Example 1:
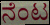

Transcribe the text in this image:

ನೆಂಟ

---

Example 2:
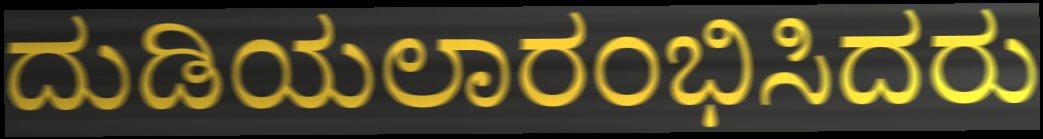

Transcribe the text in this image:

ದುಡಿಯಲಾರಂಭಿಸಿದರು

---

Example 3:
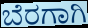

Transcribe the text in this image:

ಬೆರಗಾಗಿ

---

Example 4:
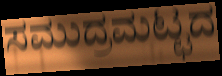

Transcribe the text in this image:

ಸಮುದ್ರಮಟ್ಟದ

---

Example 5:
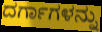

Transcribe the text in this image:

ದರ್ಗಾಗಳನ್ನು